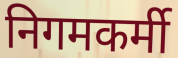
निगमकर्मी